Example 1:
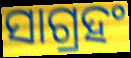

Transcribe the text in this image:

ସାଗ୍ରହଂ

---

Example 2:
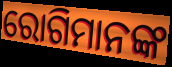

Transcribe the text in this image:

ରୋଗିମାନଙ୍କ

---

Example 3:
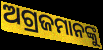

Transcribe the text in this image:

ଅଗ୍ରଜମାନଙ୍କୁ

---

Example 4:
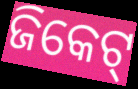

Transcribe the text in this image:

ଜିକେଟ୍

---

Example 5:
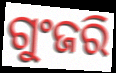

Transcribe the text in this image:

ଗୁଂଜରି